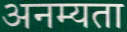
अनम्यता